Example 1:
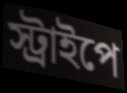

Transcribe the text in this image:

স্ট্রাইপে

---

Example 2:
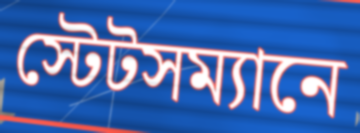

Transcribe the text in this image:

স্টেটসম্যানে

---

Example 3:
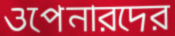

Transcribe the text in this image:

ওপেনারদের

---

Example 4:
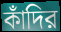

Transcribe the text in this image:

কাঁদির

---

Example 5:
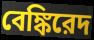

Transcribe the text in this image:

বেঙ্কিরেদ